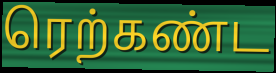
ரெற்கண்ட